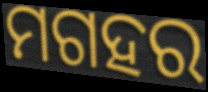
ମଗହର